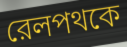
রেলপথকে